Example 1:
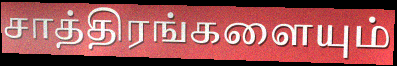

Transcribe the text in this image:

சாத்திரங்களையும்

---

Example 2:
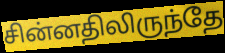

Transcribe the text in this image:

சின்னதிலிருந்தே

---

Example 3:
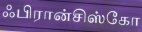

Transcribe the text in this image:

ஃபிரான்சிஸ்கோ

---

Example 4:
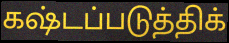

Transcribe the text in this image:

கஷ்டப்படுத்திக்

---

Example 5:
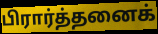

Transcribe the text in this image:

பிரார்த்தனைக்